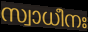
സ്വാധീനഃ